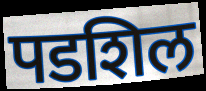
पडशिल